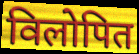
विलोपित